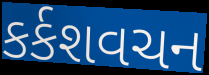
કર્કશવચન